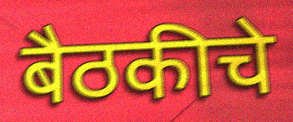
बैठकीचे